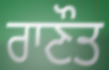
ਰਾਣੌਤ